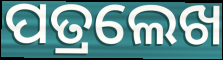
ପତ୍ରଲେଖ